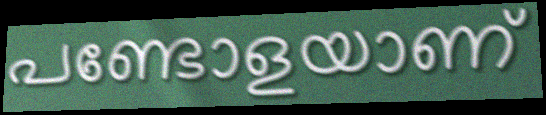
പണ്ടോളയാണ്